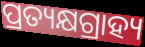
ପ୍ରତ୍ୟକ୍ଷଗ୍ରାହ୍ୟ